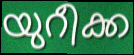
യുറീക്ക